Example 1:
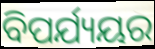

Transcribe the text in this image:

ବିପର୍ଯ୍ୟୟର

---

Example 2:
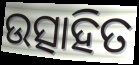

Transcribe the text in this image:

ଉତ୍ସାହିତ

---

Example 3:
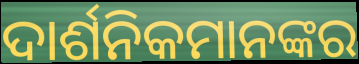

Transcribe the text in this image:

ଦାର୍ଶନିକମାନଙ୍କର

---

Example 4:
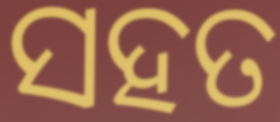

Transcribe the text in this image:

ସହତ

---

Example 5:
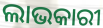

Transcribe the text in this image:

ଲାଭକାରୀ